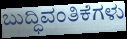
ಬುದ್ಧಿವಂತಿಕೆಗಳು